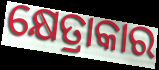
କ୍ଷେତ୍ରାକାର